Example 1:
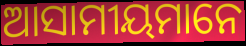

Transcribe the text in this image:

ଆସାମୀୟମାନେ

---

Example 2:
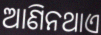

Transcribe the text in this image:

ଆଣିନଥାଏ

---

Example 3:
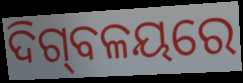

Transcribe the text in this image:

ଦିଗ୍‍ବଳୟରେ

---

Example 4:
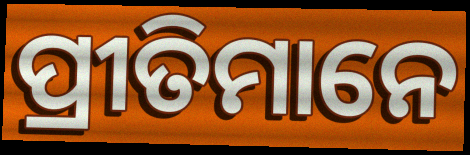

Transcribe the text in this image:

ପ୍ରୀତିମାନେ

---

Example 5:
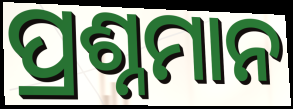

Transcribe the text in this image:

ପ୍ରଶ୍ନମାନ